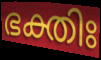
ഭക്തിഃ